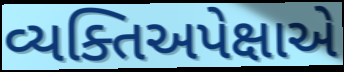
વ્યક્તિઅપેક્ષાએ